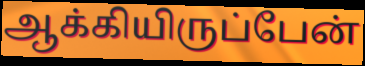
ஆக்கியிருப்பேன்